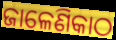
ଜାଳେଣିକାଠ